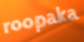
roopaka